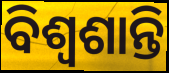
ବିଶ୍ୱଶାନ୍ତି